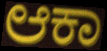
ಆಕಾ